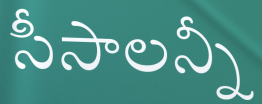
సీసాలన్నీ